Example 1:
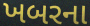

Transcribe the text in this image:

ખબરના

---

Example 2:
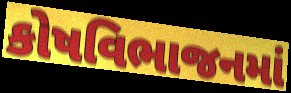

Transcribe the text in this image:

કોષવિભાજનમાં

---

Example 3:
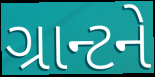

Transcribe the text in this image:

ગ્રાન્ટને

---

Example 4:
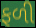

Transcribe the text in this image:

ફળી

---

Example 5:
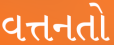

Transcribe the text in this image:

વત્તનતો